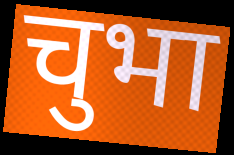
चुभा